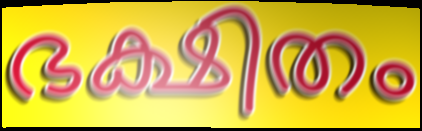
ഭക്ഷിതം